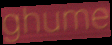
ghume